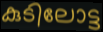
കുടിലോട്ട